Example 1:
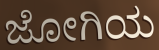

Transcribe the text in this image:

ಜೋಗಿಯ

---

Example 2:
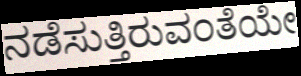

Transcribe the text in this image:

ನಡೆಸುತ್ತಿರುವಂತೆಯೇ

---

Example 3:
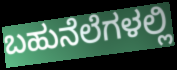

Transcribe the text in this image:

ಬಹುನೆಲೆಗಳಲ್ಲಿ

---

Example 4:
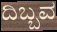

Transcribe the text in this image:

ದಿಬ್ಬವ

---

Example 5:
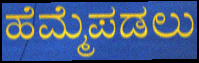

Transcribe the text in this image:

ಹೆಮ್ಮೆಪಡಲು